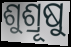
ଶୁଶ୍ରୂଷୁ